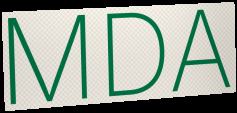
MDA